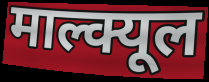
माल्क्यूल